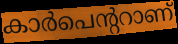
കാർപെന്ററാണ്